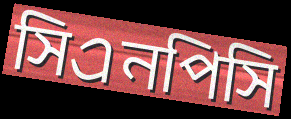
সিএনপিসি